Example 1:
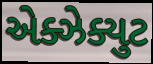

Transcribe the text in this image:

એક્ઝેક્યુટ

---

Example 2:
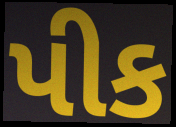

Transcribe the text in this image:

પીક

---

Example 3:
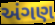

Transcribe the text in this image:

અંગણ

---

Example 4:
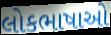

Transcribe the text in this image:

લોકભાષાઓ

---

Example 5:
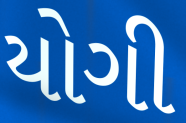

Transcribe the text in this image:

યોગી